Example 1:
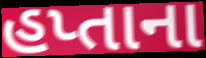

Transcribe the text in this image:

હપ્તાના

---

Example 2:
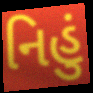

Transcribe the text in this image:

નિહું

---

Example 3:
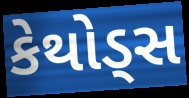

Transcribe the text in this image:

કેથોડ્સ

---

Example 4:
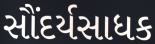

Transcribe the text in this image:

સૌંદર્યસાધક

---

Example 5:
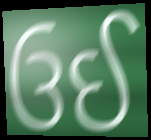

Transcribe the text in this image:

ઉઈ